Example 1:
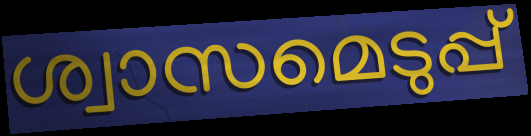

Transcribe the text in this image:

ശ്വാസമെടുപ്പ്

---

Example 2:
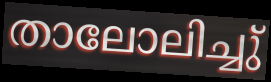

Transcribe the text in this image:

താലോലിച്ചു്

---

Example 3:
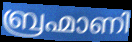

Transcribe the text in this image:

ബ്രഹ്മാണി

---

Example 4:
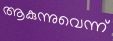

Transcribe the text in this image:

ആകുന്നുവെന്ന്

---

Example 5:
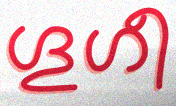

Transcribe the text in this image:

ഗൂഗീ